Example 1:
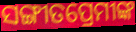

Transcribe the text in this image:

ସଙ୍ଗୀତପ୍ରେମୀଙ୍କ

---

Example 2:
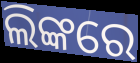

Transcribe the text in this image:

ଲିଙ୍କରେ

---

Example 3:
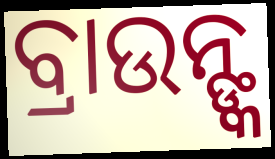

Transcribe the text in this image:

ବ୍ରାଉନ୍ଙ୍କ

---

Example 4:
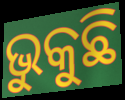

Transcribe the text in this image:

ଭୁକୁଛି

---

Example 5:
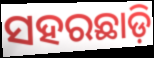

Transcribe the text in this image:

ସହରଛାଡ଼ି